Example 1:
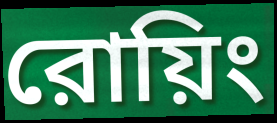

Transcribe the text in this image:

রোয়িং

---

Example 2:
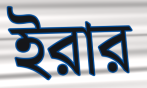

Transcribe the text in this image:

ইরার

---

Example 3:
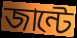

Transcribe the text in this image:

জান্টে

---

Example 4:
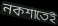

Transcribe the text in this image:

নকশাতেই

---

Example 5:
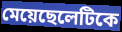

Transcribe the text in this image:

মেয়েছেলেটিকে